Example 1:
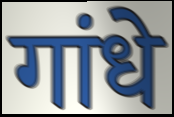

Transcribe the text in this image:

गांधे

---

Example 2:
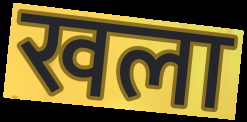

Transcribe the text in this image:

खला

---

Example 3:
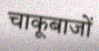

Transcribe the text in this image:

चाकूबाजों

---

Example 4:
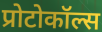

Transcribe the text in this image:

प्रोटोकॉल्स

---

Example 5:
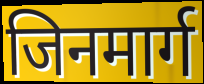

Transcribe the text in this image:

जिनमार्ग